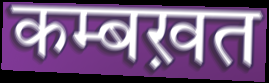
कम्बख़त